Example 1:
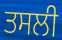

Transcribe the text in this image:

ਤਸਲੀ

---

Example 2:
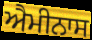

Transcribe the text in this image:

ਐਮੀਨਾਸ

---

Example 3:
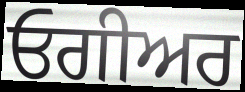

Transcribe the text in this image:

ਓਗੀਅਰ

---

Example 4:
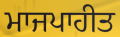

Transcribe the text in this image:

ਮਾਜਪਾਹੀਤ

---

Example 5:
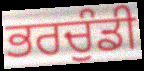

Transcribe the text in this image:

ਭਰਚੁੰਡੀ